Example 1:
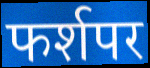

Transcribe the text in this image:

फर्शपर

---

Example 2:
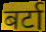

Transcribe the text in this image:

बर्टा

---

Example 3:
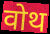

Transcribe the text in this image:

वोथ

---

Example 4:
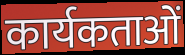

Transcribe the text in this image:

कार्यकताओं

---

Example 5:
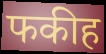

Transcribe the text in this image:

फकीह